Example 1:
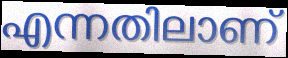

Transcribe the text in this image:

എന്നതിലാണ്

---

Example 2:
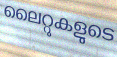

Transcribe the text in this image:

ലൈറ്റുകളുടെ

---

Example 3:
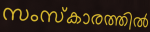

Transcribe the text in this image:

സംസ്കാരത്തിൽ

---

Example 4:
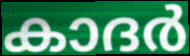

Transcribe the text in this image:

കാദർ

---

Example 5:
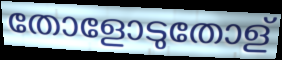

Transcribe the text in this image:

തോളോടുതോള്